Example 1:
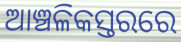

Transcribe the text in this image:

ଆଞ୍ଚଳିକସ୍ତରରେ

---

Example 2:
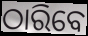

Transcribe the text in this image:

ଠାରିବେ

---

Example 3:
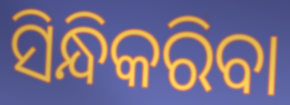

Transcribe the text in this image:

ସିନ୍ଧିକରିବା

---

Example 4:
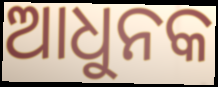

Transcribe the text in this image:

ଆଧୁନକ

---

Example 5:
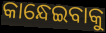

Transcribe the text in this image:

କାନ୍ଧେଇବାକୁ